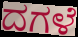
ದಗಳೆ